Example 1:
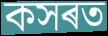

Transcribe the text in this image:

কসৰত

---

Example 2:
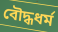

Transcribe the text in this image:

বৌদ্ধধৰ্ম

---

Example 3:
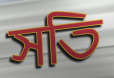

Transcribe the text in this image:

সতি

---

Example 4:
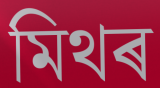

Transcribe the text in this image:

মিথৰ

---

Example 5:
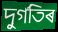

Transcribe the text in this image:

দুৰ্গতিৰ